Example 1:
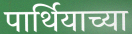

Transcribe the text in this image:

पार्थियाच्या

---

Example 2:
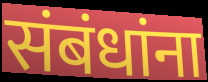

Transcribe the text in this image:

संबंधांना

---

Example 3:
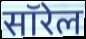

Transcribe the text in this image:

सॉरेल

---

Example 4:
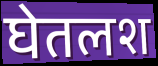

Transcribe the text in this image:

घेतलश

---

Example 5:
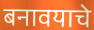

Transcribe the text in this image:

बनावयाचे